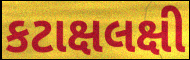
કટાક્ષલક્ષી